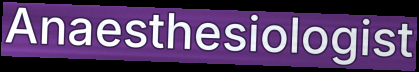
Anaesthesiologist